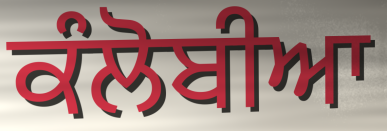
ਕੰਲੋਬੀਆ